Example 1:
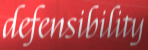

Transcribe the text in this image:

defensibility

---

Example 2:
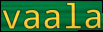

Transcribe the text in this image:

vaala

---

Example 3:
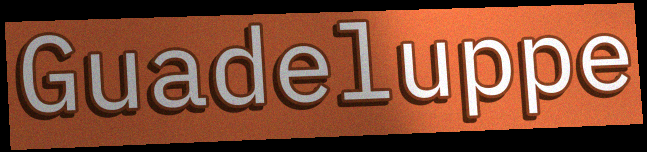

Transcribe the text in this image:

Guadeluppe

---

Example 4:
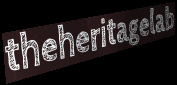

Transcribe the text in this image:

theheritagelab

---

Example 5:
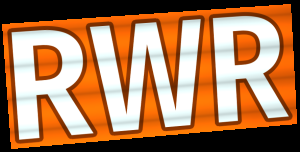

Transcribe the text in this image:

RWR